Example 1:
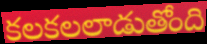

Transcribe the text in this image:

కలకలలాడుతోంది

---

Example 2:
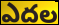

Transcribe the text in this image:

ఎదల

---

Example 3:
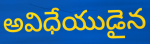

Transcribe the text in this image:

అవిధేయుడైన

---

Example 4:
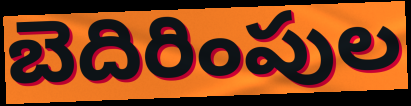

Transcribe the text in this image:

బెదిరింపుల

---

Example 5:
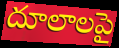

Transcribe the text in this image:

దూలాలపై